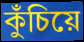
কুঁচিয়ে